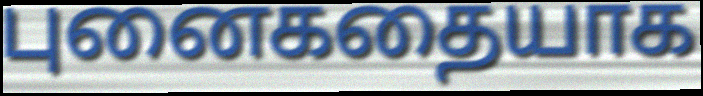
புனைகதையாக